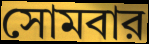
সোমবার